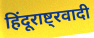
हिंदूराष्ट्रवादी